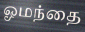
ஓமந்தை